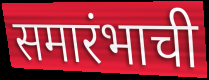
समारंभाची